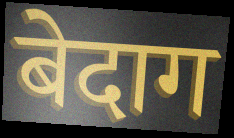
बेदाग